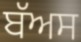
ਬੱਅਸ